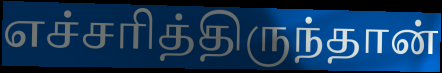
எச்சரித்திருந்தான்